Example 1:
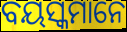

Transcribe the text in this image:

ବୟସ୍କମାନେ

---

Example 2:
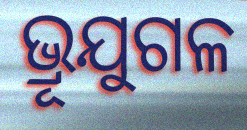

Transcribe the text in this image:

ଭ୍ରୂଯୁଗଳ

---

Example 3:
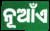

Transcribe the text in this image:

ନୂଆଁଏ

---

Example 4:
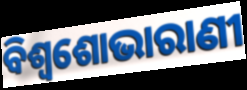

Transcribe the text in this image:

ବିଶ୍ୱଶୋଭାରାଣୀ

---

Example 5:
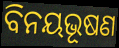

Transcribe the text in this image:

ବିନୟଭୂଷଣ